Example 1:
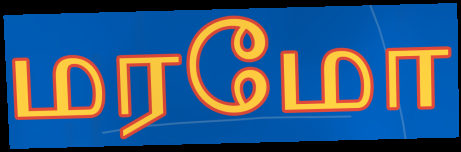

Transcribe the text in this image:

மரமோ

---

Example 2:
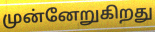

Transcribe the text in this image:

முன்னேறுகிறது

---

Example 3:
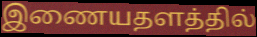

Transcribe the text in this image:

இணையதளத்தில்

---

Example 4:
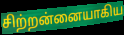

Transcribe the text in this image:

சிற்றன்னையாகிய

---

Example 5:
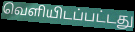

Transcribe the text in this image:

வெளியிடப்பட்டது